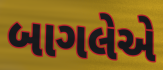
બાગલેએ